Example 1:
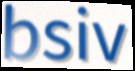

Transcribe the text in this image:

bsiv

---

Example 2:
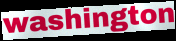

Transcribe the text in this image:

washington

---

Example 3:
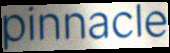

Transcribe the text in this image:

pinnacle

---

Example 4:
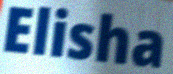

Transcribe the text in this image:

Elisha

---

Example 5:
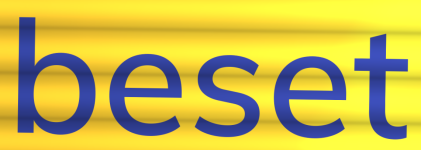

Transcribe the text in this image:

beset